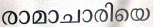
രാമാചാരിയെ